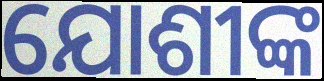
ଯୋଶୀଙ୍କ